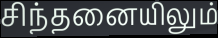
சிந்தனையிலும்